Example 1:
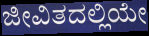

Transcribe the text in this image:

ಜೀವಿತದಲ್ಲಿಯೇ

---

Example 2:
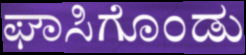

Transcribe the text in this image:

ಘಾಸಿಗೊಂಡು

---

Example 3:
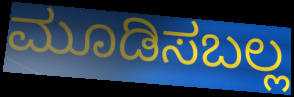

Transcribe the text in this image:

ಮೂಡಿಸಬಲ್ಲ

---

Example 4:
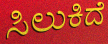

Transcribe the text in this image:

ಸಿಲುಕಿದೆ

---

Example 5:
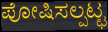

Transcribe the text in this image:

ಪೋಷಿಸಲ್ಪಟ್ಟ